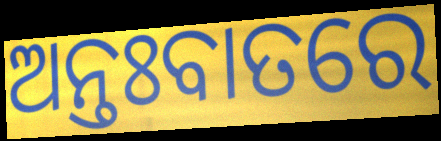
ଅନ୍ତଃବାତରେ